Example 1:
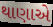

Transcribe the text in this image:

થાણાએ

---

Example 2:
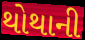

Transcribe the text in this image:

થોથાની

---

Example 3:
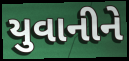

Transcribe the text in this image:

યુવાનીને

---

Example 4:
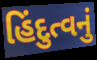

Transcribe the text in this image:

હિંદુત્વનું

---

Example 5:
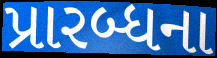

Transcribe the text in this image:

પ્રારબ્ધના